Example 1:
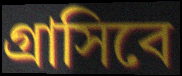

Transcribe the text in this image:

গ্রাসিবে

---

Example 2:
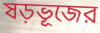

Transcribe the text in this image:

ষড়ভূজের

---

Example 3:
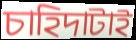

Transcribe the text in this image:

চাহিদাটাই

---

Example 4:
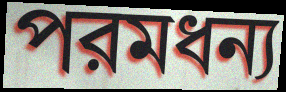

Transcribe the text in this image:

পরমধন্য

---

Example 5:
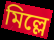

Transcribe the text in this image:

মিল্লে